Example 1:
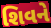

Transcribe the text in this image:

શિવને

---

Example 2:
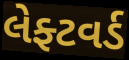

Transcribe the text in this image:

લેફ્ટવર્ડ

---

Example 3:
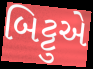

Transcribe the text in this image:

બિટ્ટુએ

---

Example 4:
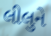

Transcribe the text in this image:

લીલુને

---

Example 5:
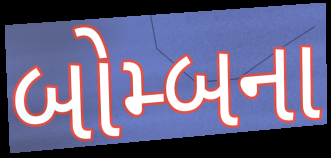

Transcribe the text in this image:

બોમ્બના